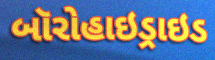
બૉરોહાઇડ્રાઇડ